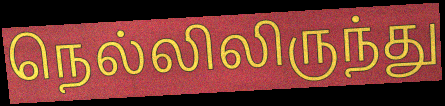
நெல்லிலிருந்து